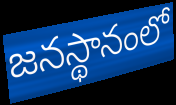
జనస్థానంలో